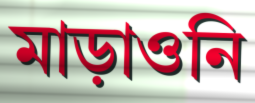
মাড়াওনি